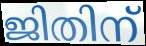
ജിതിന്